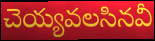
చెయ్యవలసినవీ